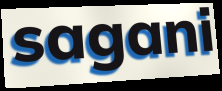
sagani